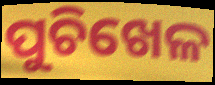
ପୁଚିଖେଳ